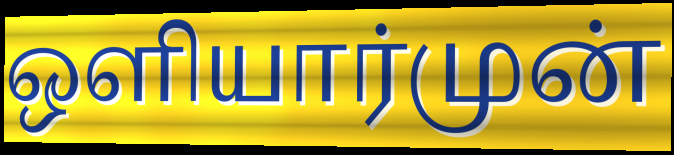
ஒளியார்முன்